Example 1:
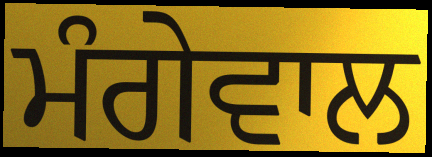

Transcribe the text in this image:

ਮੰਗੇਵਾਲ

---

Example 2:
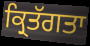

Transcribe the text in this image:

ਕ੍ਰਿਤੱਗਤਾ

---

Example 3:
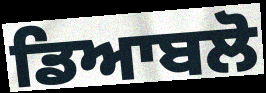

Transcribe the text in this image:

ਡਿਆਬਲੋ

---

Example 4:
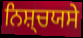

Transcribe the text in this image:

ਨਿਸ਼੍ਚਯਸੇ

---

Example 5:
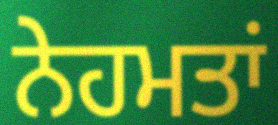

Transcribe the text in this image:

ਨੇਹਮਤਾਂ